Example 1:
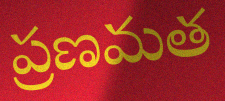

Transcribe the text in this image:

ప్రణమత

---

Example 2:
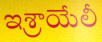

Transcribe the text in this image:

ఇశ్రాయేలీ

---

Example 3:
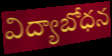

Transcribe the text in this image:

విద్యాబోధన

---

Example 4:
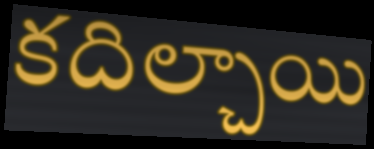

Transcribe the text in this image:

కదిల్చాయి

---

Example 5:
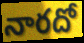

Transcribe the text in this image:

నారదో